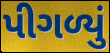
પીગળ્યું